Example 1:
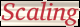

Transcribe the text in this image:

Scaling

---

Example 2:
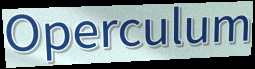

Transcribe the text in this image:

Operculum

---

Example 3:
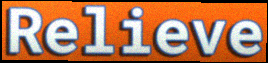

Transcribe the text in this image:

Relieve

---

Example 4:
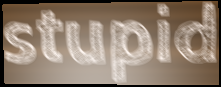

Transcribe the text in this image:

stupid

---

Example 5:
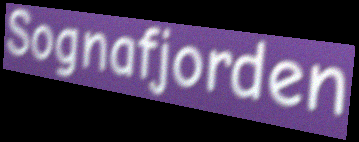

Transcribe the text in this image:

Sognafjorden